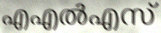
എഎൽഎസ്